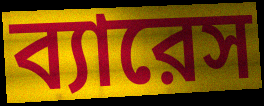
ব্যারেস